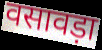
वसावड़ा